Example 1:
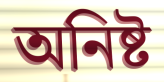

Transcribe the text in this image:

অনিষ্ট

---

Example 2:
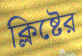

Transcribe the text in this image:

ক্লিষ্টের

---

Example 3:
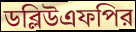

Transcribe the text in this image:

ডব্লিউএফপির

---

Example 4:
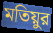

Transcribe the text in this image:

মতিয়ুর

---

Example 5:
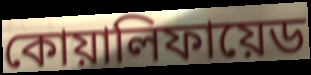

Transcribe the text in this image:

কোয়ালিফায়েড